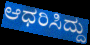
ಆಧರಿಸಿದ್ದು